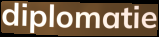
diplomatie